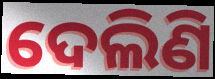
ଦେଲିଣି